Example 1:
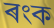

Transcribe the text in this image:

ৰংক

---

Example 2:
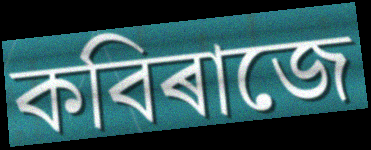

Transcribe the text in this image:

কবিৰাজে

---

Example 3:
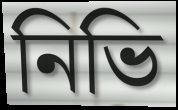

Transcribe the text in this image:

নিভি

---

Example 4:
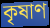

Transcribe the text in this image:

কৃষাণ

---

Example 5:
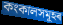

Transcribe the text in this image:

কংকালসমূহৰ